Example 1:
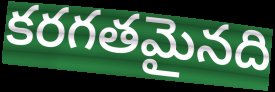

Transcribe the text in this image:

కరగతమైనది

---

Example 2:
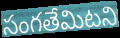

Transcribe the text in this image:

సంగతేమిటని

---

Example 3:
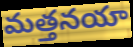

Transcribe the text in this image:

మత్తనయా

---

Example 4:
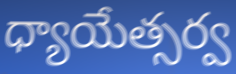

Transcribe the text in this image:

ధ్యాయేత్సర్వ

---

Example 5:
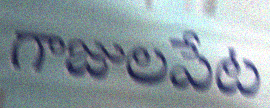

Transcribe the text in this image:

గాజులపేట